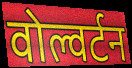
वोल्वर्टन